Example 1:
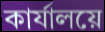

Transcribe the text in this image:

কার্যালয়ে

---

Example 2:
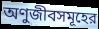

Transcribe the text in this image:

অণুজীবসমূহের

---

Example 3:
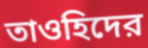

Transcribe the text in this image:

তাওহিদের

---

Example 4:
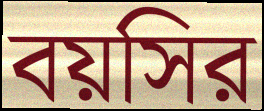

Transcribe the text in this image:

বয়সির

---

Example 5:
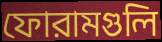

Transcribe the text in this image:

ফোরামগুলি